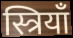
स्त्रियाँ